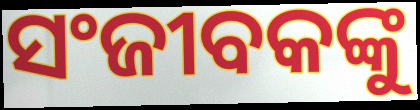
ସଂଜୀବକଙ୍କୁ